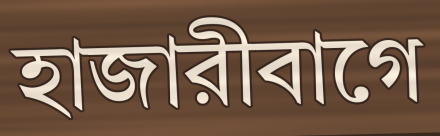
হাজারীবাগে